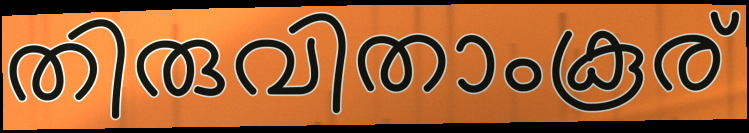
തിരുവിതാംകൂര്